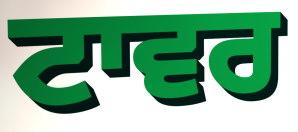
ਟਾਵਰ